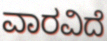
ವಾರವಿದೆ